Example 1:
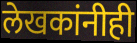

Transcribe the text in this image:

लेखकांनीही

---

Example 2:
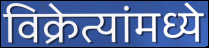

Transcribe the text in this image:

विक्रेत्यांमध्ये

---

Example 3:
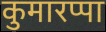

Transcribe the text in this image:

कुमारप्पा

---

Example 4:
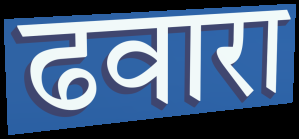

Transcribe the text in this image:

ढवारा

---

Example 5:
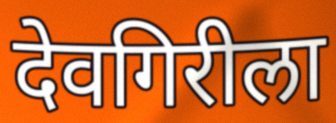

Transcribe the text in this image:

देवगिरीला